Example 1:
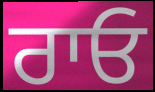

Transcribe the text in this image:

ਰਾਓ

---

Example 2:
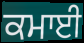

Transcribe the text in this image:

ਕਮਾਈ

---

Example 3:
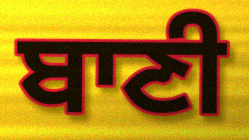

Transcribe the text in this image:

ਬਾਣੀ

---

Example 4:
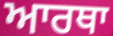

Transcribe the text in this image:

ਆਰਥਾ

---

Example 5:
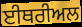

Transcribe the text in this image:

ਈਥਰੀਅਲ